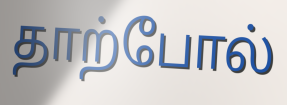
தாற்போல்